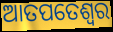
ଆତପତେଶ୍ୱର